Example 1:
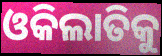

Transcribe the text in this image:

ଓକିଲାତିକୁ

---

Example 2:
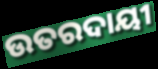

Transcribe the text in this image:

ଉତରଦାୟୀ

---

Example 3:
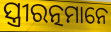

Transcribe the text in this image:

ସ୍ତ୍ରୀରତ୍ନମାନେ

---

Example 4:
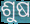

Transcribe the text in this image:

ଶୁଷ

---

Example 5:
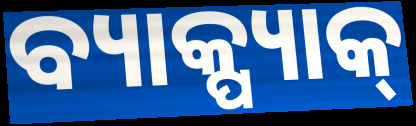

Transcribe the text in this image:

ବ୍ୟାକ୍ପ୍ୟାକ୍